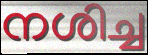
നശിച്ച